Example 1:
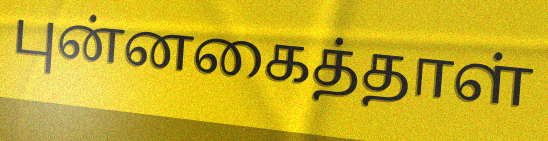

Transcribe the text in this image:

புன்னகைத்தாள்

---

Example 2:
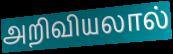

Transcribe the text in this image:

அறிவியலால்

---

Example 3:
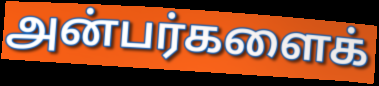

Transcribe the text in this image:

அன்பர்களைக்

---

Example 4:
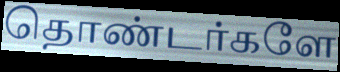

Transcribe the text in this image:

தொண்டர்களே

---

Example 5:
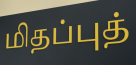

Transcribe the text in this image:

மிதப்புத்